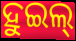
ହୁଇଲ୍